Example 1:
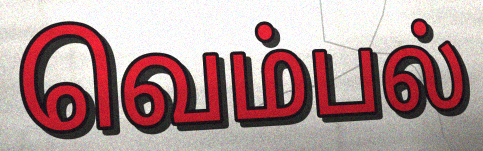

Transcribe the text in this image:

வெம்பல்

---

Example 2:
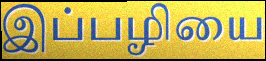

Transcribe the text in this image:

இப்பழியை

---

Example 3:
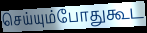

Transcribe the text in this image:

செய்யும்போதுகூட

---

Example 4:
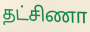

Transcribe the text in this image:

தட்சிணா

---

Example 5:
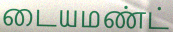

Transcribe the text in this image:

டையமண்ட்